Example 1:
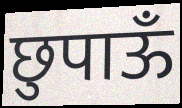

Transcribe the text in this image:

छुपाऊँ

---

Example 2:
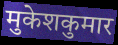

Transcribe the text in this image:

मुकेशकुमार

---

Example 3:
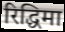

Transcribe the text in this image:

रिद्धिमा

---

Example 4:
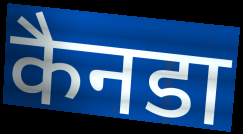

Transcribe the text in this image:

कैनडा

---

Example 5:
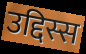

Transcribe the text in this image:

उद्दिस्स